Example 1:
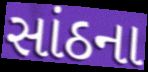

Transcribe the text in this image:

સાંઠના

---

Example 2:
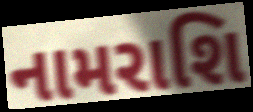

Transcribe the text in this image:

નામરાશિ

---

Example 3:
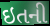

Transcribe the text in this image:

ઇતની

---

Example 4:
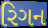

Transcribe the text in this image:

રિગન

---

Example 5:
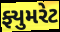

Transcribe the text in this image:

ફ્યુમરેટ